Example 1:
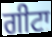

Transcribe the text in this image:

ਗੀਟਾ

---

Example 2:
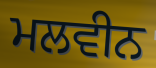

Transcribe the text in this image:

ਮਲਵੀਨ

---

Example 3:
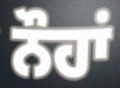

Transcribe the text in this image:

ਨੌਹਾਂ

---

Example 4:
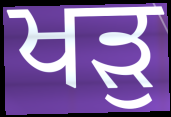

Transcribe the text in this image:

ਖੜੁ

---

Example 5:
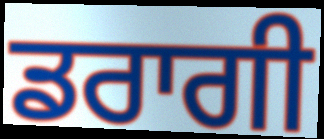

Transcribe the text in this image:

ਡਰਾਗੀ